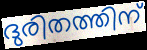
ദുരിതത്തിന്